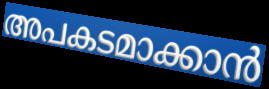
അപകടമാക്കാൻ